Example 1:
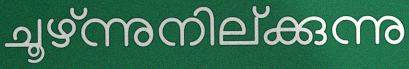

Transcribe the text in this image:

ചൂഴ്ന്നുനില്ക്കുന്നു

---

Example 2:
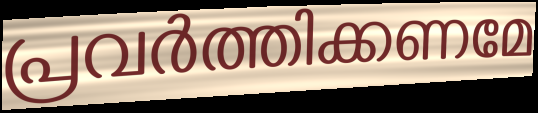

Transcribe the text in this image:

പ്രവർത്തിക്കണമേ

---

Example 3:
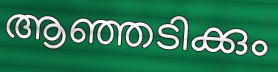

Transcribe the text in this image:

ആഞ്ഞടിക്കും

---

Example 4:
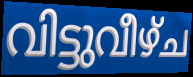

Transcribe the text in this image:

വിട്ടുവീഴ്ച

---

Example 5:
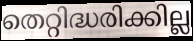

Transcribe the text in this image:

തെറ്റിദ്ധരിക്കില്ല